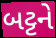
બટ્ટને